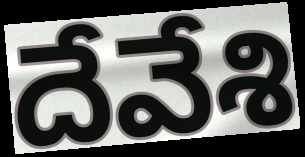
దేవేశి